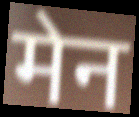
मेन